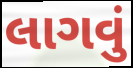
લાગવું